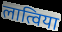
लात्विया